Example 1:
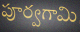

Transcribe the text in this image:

పూర్వగామి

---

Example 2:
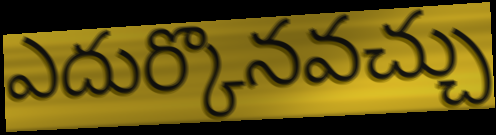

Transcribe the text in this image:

ఎదుర్కొనవచ్చు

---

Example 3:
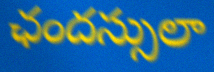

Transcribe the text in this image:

ఛందస్సులా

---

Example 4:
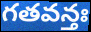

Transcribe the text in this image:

గతవన్తః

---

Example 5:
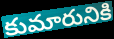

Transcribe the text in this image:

కుమారునికి